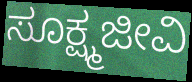
ಸೂಕ್ಷ್ಮಜೀವಿ